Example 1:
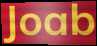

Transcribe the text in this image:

Joab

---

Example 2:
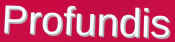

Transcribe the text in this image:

Profundis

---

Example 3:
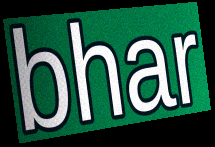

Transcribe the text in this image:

bhar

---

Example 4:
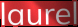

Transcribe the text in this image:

laurel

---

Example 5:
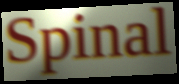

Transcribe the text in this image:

Spinal